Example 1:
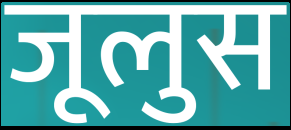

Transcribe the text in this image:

जूलुस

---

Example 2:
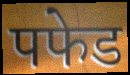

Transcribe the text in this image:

पफेड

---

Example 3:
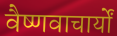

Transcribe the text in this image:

वैष्णवाचार्यों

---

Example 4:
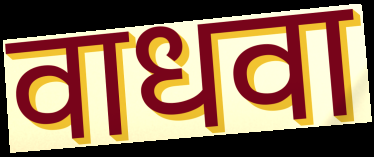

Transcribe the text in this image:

वाधवा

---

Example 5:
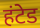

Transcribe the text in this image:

हंटेड